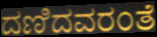
ದಣಿದವರಂತೆ